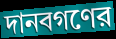
দানবগণের